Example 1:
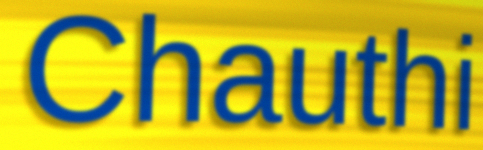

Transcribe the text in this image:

Chauthi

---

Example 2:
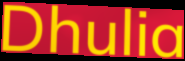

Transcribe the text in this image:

Dhulia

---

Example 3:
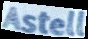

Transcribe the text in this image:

Astell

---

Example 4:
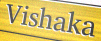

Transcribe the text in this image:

Vishaka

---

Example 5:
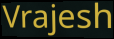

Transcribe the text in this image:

Vrajesh